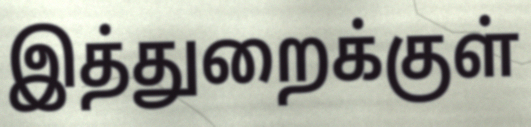
இத்துறைக்குள்